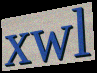
xwl